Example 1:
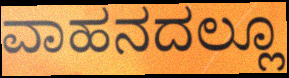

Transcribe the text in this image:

ವಾಹನದಲ್ಲೂ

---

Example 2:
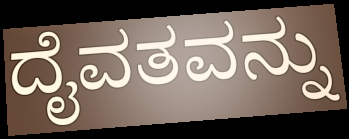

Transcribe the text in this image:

ದೈವತವನ್ನು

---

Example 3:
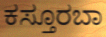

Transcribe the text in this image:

ಕಸ್ತೂರಬಾ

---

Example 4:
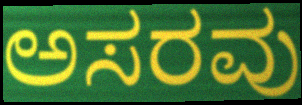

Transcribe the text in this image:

ಅಸರವು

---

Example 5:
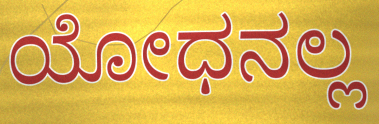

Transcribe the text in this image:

ಯೋಧನಲ್ಲ